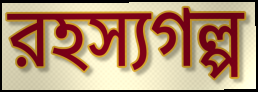
রহস্যগল্প